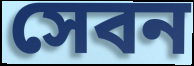
সেবন